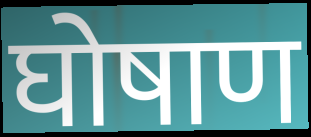
घोषाण